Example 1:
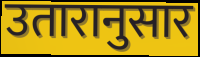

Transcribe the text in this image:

उतारानुसार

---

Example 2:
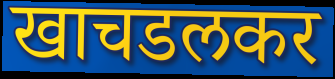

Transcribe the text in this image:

खाचडलकर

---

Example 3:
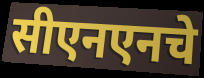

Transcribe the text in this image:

सीएनएनचे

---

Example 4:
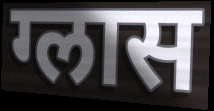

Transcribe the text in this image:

ग्लास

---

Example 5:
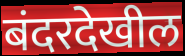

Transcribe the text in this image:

बंदरदेखील